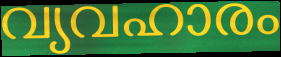
വ്യവഹാരം